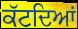
ਕੱਟਦਿਆਂ